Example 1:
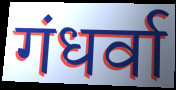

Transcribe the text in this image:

गंधर्वा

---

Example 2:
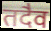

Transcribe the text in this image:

तदैव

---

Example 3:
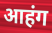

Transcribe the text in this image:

आहंग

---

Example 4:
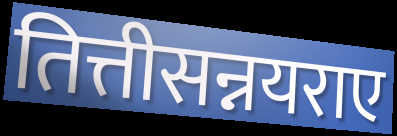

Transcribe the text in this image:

तित्तीसन्नयराए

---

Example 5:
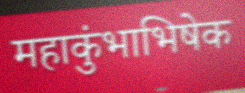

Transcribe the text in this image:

महाकुंभाभिषेक